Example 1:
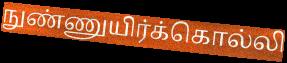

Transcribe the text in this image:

நுண்ணுயிர்க்கொல்லி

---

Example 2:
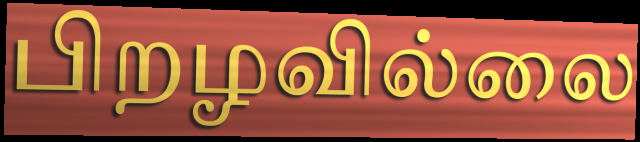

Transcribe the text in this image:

பிறழவில்லை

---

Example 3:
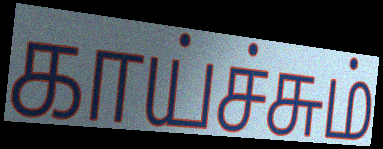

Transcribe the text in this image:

காய்ச்சும்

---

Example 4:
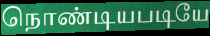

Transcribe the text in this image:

நொண்டியபடியே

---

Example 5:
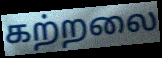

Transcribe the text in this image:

கற்றலை